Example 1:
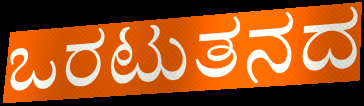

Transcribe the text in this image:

ಒರಟುತನದ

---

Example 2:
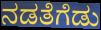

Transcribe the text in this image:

ನಡತೆಗೆಡು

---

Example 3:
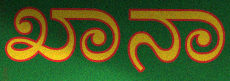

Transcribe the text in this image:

ಖಾನಾ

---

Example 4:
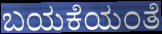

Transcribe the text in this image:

ಬಯಕೆಯಂತೆ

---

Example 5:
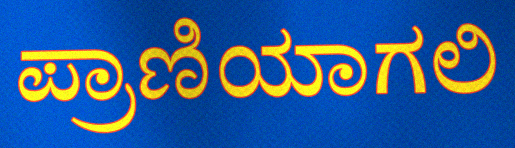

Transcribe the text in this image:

ಪ್ರಾಣಿಯಾಗಲಿ